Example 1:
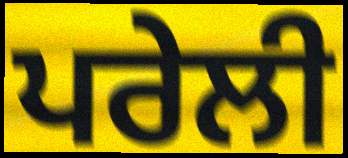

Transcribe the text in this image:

ਪਰੇਲੀ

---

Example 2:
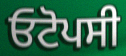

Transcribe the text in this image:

ਓਟੋਪਸੀ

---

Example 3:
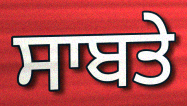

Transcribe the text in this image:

ਸਾਬਤੇ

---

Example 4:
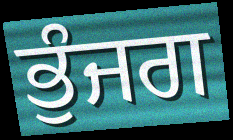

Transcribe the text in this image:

ਭੁੰਜਗ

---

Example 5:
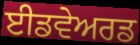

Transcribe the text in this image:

ਈਡਵੇਅਰਡ